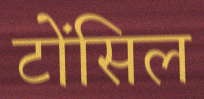
टोंसिल